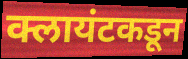
क्लायंटकडून